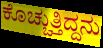
ಕೊಚ್ಚುತ್ತಿದ್ದನು